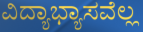
ವಿದ್ಯಾಭ್ಯಾಸವೆಲ್ಲ